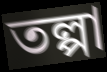
তল্পা